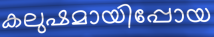
കലുഷമായിപ്പോയ